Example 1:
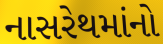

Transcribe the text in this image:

નાસરેથમાંનો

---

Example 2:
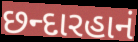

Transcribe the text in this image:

છન્દારહાનં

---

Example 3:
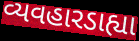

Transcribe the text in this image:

વ્યવહારડાહ્યા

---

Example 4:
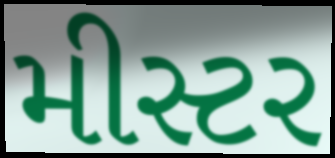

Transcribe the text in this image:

મીસ્ટર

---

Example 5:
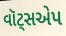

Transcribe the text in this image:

વૉટ્સએપ